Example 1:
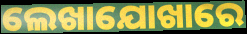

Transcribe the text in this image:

ଲେଖାଯୋଖାରେ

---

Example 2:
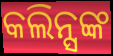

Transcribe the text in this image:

କଲିନ୍ସଙ୍କ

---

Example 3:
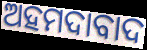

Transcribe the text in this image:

ଅହମଦାବାଦ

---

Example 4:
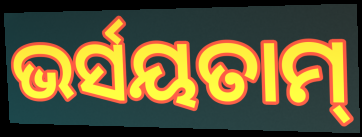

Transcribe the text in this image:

ଭର୍ସୟତାମ୍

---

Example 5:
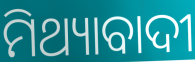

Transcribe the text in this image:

ମିଥ୍ୟାବାଦୀ